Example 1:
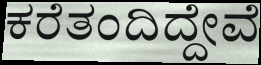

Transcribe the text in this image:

ಕರೆತಂದಿದ್ದೇವೆ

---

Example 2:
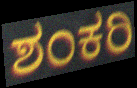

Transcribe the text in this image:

ಶಂಕರಿ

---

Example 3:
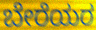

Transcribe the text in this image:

ಬೇರೆಯರ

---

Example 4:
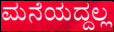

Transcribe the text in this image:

ಮನೆಯದ್ದಲ್ಲ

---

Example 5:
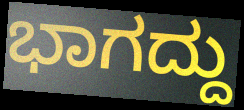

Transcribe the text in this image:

ಭಾಗದ್ದು